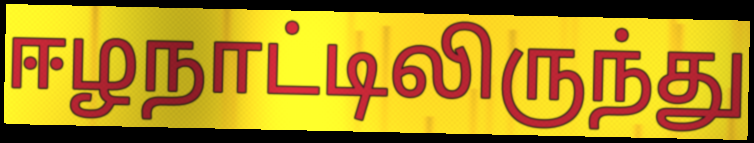
ஈழநாட்டிலிருந்து